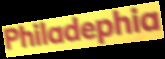
Philadephia